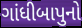
ગાંધીબાપુનો